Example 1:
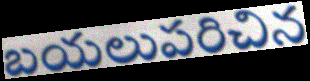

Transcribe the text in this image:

బయలుపరిచిన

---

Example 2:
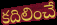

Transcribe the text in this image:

కదిలించే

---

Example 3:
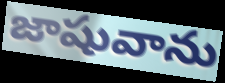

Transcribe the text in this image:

జాషువాను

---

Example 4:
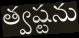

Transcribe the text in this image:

త్వష్టను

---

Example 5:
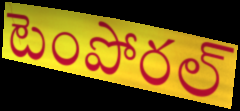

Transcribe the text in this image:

టెంపోరల్